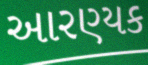
આરણ્યક